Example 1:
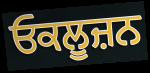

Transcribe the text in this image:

ਓਕਲੂਜ਼ਨ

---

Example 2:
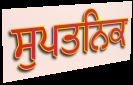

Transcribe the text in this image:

ਸੁਪਤਨਿਕ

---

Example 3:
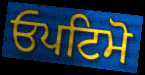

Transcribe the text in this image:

ਓਪਟਿਮੋ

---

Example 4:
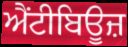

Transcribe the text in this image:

ਐਂਟੀਬਿਊਜ਼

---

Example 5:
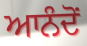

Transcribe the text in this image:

ਆਨੰਦੋਂ